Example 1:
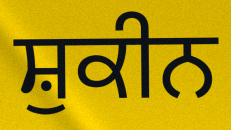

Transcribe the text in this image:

ਸ਼ੁਕੀਨ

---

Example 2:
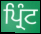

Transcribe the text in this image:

ਪ੍ਰਿੰਟ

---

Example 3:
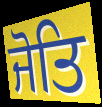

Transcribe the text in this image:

ਜੋਤਿ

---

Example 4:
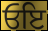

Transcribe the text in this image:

ਓਇ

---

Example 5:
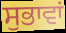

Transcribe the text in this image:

ਸੁਭਾਵਾਂ